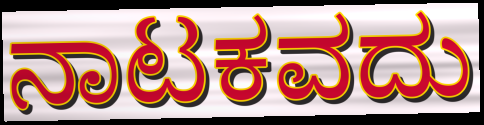
ನಾಟಕವದು